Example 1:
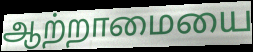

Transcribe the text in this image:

ஆற்றாமையை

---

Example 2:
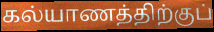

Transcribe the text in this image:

கல்யாணத்திற்குப்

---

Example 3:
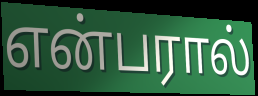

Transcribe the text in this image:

என்பரால்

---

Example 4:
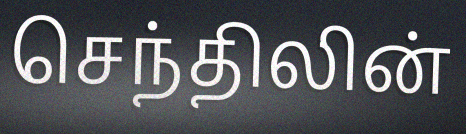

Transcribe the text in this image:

செந்திலின்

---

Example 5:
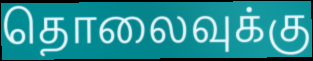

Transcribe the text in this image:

தொலைவுக்கு